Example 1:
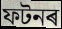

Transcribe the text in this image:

ফটনৰ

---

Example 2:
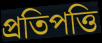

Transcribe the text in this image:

প্ৰতিপত্তি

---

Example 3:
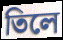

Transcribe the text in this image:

তিলে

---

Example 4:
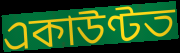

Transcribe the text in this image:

একাউণ্টত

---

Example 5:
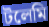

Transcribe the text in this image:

টলেমি